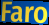
Faro